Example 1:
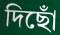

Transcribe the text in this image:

দিছোঁ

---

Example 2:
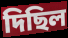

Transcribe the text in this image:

দিছিল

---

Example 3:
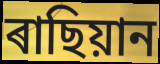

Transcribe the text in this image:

ৰাছিয়ান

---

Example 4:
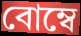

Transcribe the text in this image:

বোম্বে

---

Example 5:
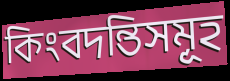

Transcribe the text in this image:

কিংবদন্তিসমূহ